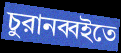
চুরানব্বইতে